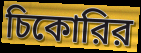
চিকোরির